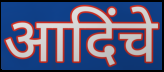
आदिंचे